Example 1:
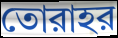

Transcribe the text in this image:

তোরাহর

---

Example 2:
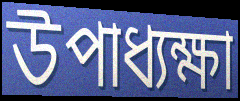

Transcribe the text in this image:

উপাধ্যক্ষা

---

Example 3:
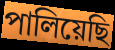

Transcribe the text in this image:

পালিয়েছি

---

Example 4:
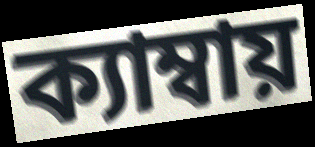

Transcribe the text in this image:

ক্যাম্বায়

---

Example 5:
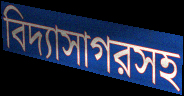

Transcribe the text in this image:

বিদ্যাসাগরসহ